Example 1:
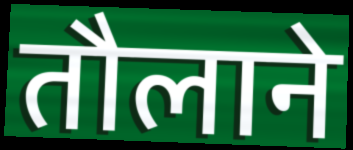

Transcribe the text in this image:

तौलाने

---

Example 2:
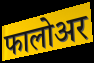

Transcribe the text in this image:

फालोअर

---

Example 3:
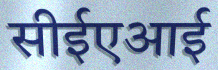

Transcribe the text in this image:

सीईएआई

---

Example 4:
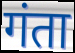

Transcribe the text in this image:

गंता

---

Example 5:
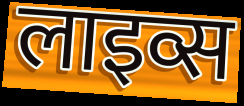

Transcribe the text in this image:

लाइव्स